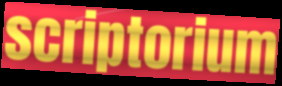
scriptorium